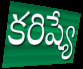
కరిష్యే